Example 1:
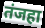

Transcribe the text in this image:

तंजहा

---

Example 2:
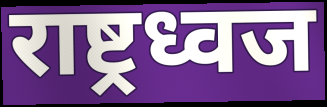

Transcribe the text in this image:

राष्ट्रध्वज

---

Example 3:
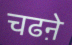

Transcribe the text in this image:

चढऩे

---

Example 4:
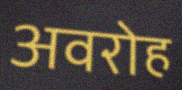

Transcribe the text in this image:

अवरोह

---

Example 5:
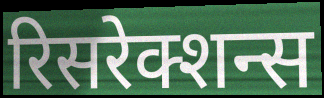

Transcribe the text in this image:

रिसरेक्शन्स